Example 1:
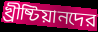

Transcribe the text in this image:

খ্রীষ্টিয়ানদের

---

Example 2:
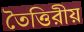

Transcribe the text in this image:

তৈত্তিরীয়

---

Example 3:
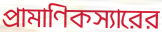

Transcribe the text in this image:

প্রামাণিকস্যারের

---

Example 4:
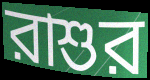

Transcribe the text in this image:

রাশুর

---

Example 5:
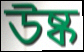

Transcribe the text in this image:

উষ্ক